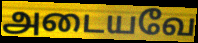
அடையவே